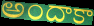
అందాకా